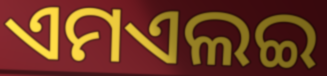
ଏମଏଲଇ